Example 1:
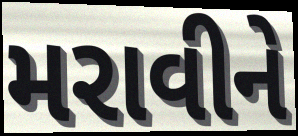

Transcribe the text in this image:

મરાવીને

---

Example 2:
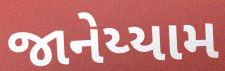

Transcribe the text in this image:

જાનેય્યામ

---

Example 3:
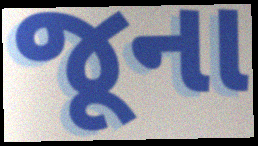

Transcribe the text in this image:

જૂના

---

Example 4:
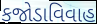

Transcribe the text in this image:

કજોડાવિવાહ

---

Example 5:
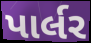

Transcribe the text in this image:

પાર્લર